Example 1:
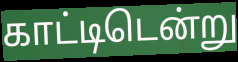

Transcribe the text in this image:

காட்டிடென்று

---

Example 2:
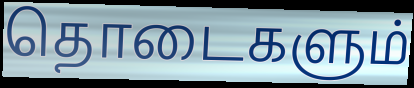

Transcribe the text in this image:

தொடைகளும்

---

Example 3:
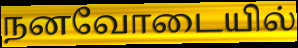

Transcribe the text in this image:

நனவோடையில்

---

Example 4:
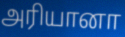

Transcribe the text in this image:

அரியானா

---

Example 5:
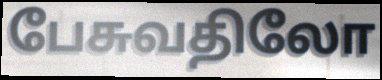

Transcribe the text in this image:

பேசுவதிலோ